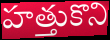
హత్తుకొని